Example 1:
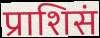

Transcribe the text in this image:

प्राशिसं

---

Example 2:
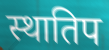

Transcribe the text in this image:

स्थातिप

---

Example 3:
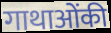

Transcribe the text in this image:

गाथाओंकी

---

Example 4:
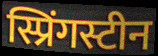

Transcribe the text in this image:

स्प्रिंगस्टीन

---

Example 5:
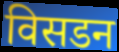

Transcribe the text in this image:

विसडन